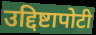
उद्दिष्टापोटी